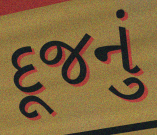
દૂજનું